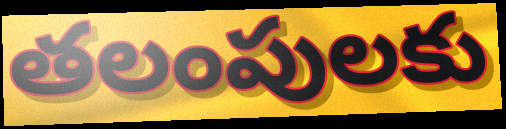
తలంపులకు